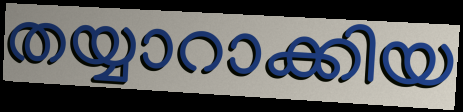
തയ്യാറാക്കിയ